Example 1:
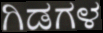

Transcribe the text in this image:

ಗಿಡಗಳ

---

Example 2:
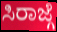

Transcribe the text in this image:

ಸಿರಾಜ್ಗೆ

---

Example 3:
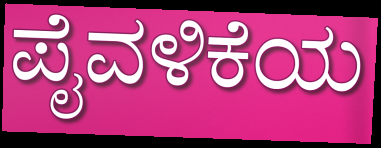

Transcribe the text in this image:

ಪೈವಳಿಕೆಯ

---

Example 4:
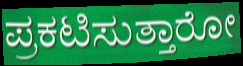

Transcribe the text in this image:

ಪ್ರಕಟಿಸುತ್ತಾರೋ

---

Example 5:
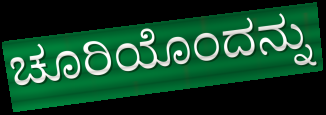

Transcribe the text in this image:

ಚೂರಿಯೊಂದನ್ನು